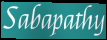
Sabapathy